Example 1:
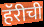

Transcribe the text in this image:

हॅरीची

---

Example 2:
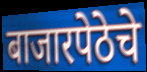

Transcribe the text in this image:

बाजारपेठेचे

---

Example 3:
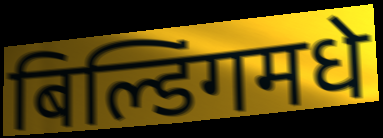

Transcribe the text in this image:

बिल्डिंगमधे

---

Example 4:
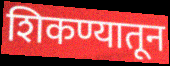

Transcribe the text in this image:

शिकण्यातून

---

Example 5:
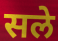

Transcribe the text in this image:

सले